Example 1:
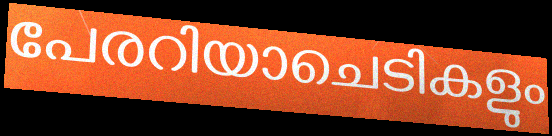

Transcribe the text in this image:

പേരറിയാചെടികളും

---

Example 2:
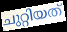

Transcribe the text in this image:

ചുറ്റിയത്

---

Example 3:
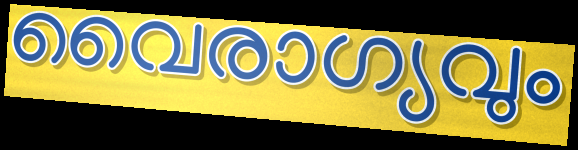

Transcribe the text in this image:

വൈരാഗ്യവും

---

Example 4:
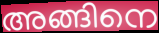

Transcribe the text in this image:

അങ്ങിനെ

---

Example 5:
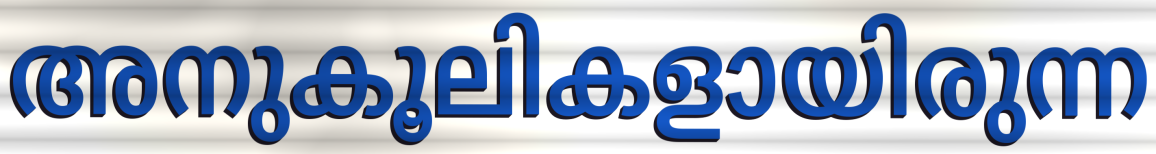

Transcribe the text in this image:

അനുകൂലികളായിരുന്ന